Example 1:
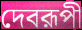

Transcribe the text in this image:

দেবরূপী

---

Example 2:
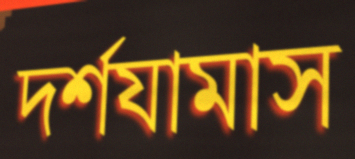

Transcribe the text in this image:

দর্শযামাস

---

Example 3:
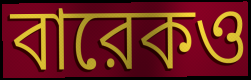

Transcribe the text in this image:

বারেকও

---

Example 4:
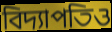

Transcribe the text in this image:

বিদ্যাপতিও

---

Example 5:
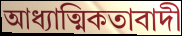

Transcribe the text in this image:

আধ্যাত্মিকতাবাদী